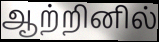
ஆற்றினில்